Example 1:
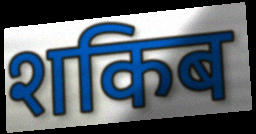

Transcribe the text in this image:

शकिब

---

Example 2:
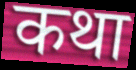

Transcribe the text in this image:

कथा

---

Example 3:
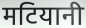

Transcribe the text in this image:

मटियानी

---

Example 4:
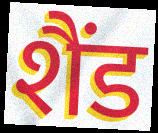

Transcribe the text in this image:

शैंड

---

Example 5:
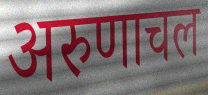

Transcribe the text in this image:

अरुणाचल